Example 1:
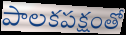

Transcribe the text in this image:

పాలకపక్షంతో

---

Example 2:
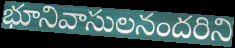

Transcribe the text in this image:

భూనివాసులనందరిని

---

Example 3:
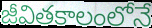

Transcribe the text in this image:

జీవితకాలంలోనే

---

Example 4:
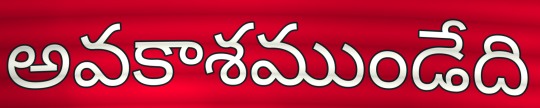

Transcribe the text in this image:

అవకాశముండేది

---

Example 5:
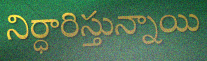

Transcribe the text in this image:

నిర్ధారిస్తున్నాయి